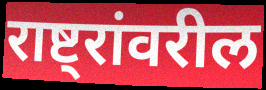
राष्ट्रांवरील